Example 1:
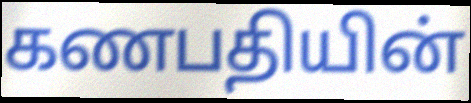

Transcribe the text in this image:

கணபதியின்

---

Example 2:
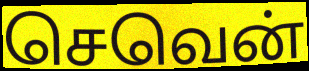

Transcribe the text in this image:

செவென்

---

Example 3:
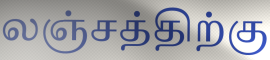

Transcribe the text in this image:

லஞ்சத்திற்கு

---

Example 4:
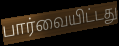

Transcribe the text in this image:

பார்வையிட்டது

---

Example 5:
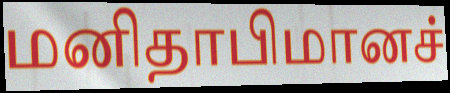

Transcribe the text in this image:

மனிதாபிமானச்